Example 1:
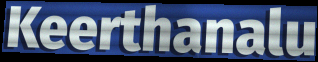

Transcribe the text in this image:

Keerthanalu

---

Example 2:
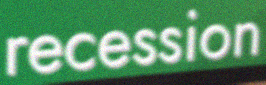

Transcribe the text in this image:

recession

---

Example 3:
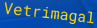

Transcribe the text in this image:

Vetrimagal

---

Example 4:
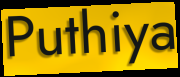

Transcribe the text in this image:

Puthiya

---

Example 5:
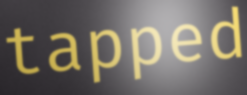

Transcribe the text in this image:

tapped